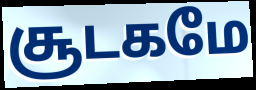
சூடகமே